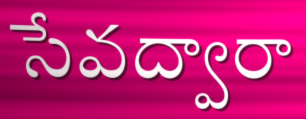
సేవద్వారా